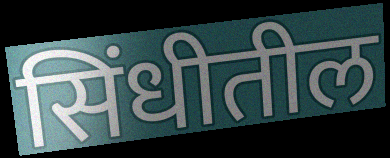
सिंधीतील